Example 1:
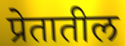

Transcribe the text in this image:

प्रेतातील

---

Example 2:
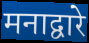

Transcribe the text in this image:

मनाद्वारे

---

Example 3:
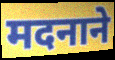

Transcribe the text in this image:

मदनाने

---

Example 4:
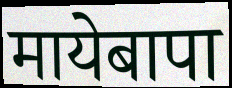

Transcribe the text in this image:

मायेबापा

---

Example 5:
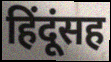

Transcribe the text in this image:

हिंदूंसह